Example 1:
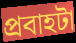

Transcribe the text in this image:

প্রবাহটা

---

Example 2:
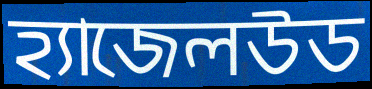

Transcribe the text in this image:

হ্যাজেলউড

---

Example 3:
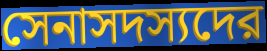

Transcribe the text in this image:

সেনাসদস্যদের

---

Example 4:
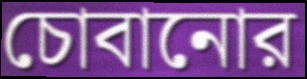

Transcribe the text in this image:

চোবানোর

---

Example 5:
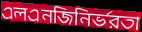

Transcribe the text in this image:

এলএনজিনির্ভরতা